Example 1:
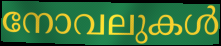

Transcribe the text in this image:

നോവലുകൾ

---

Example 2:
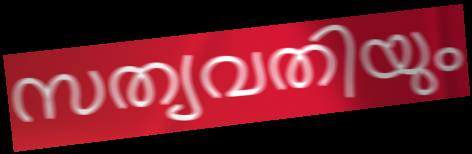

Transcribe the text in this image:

സത്യവതിയും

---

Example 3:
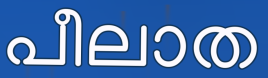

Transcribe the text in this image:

പീലാത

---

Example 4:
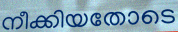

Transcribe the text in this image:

നീക്കിയതോടെ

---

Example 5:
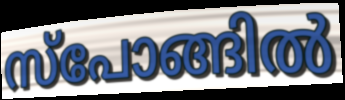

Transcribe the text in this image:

സ്പോങ്ങിൽ